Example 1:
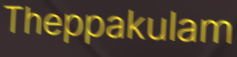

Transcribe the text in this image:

Theppakulam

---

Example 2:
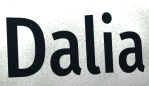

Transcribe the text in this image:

Dalia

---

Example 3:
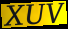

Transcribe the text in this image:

XUV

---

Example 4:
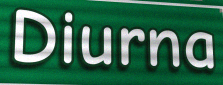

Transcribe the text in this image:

Diurna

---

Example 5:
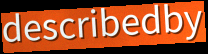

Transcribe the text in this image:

describedby